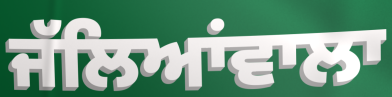
ਜੱਲਿਆਂਵਾਲਾ